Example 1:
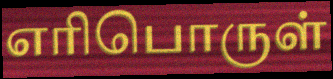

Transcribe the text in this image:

எரிபொருள்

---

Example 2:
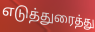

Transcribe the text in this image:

எடுத்துரைத்து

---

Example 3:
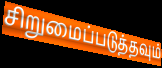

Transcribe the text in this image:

சிறுமைப்படுத்தவும்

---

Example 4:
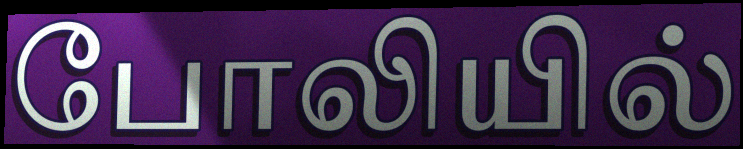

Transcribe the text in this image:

போலியில்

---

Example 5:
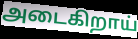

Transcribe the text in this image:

அடைகிறாய்